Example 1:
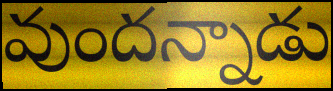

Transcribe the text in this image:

వుందన్నాడు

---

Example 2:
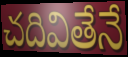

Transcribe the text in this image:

చదివితేనే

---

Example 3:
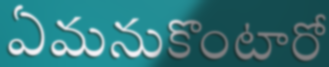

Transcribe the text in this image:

ఏమనుకొంటారో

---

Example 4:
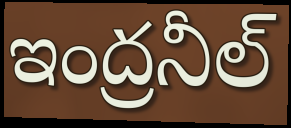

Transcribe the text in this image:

ఇంద్రనీల్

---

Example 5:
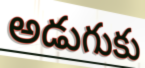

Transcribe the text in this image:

అడుగుకు